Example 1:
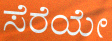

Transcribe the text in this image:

ಸೆರೆಯೇ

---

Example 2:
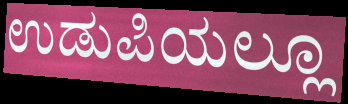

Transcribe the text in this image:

ಉಡುಪಿಯಲ್ಲೂ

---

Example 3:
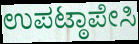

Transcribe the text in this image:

ಉಪಟ್ಠಾಪೇಸಿ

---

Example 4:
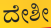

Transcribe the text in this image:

ದೇಶೀ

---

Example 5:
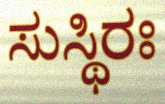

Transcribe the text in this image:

ಸುಸ್ಥಿರಃ